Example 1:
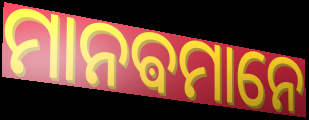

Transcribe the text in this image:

ମାନଵମାନେ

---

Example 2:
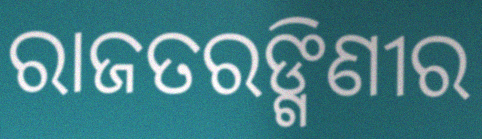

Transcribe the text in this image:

ରାଜତରଙ୍ଗିଣୀର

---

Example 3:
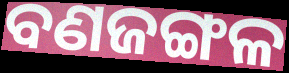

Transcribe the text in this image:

ବଣଜଙ୍ଗଳ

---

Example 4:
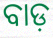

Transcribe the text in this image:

ବାଡ଼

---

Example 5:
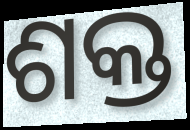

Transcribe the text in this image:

ଶକ୍ତ